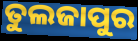
ତୁଲଜାପୁର